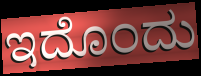
ಇದೊಂದು